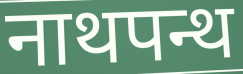
नाथपन्थ